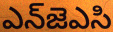
ఎన్‌జెఎసి